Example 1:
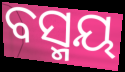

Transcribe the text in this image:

ବସ୍ମୟ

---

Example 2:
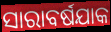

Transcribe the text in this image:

ସାରାବର୍ଷଯାକ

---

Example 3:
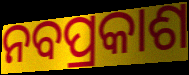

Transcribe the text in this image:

ନବପ୍ରକାଶ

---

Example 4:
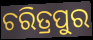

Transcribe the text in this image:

ଚରିତ୍ରପୁର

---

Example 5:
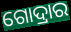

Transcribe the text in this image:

ଗୋଦ୍ରାର